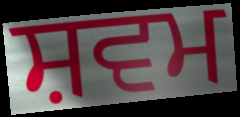
ਸ਼ਵਮ